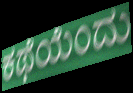
ಕಥೆಯೆಂದು